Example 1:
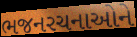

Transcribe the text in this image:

ભજનરચનાઓને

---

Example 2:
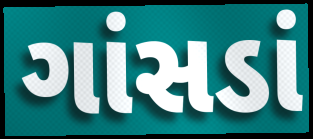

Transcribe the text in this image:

ગાંસડાં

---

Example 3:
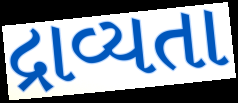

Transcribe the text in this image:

દ્રાવ્યતા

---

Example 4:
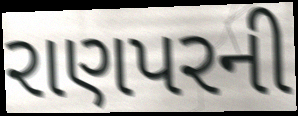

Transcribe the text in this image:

રાણપરની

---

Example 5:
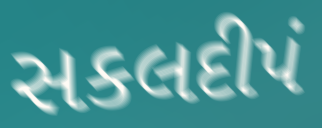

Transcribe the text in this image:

સકલદીપં